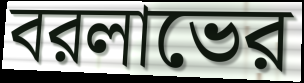
বরলাভের